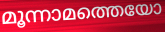
മൂന്നാമത്തെയോ